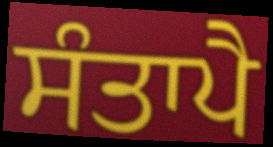
ਸੰਤਾਪੈ